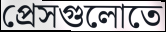
প্রেসগুলোতে